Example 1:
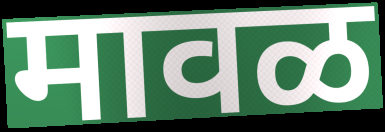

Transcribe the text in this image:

मावळ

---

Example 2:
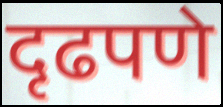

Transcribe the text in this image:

दृढपणे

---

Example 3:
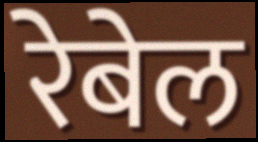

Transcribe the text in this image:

रेबेल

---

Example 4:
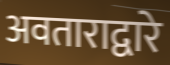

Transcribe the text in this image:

अवताराद्वारे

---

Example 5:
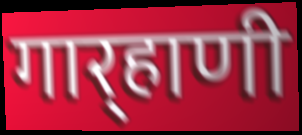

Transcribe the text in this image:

गार्‍हाणी